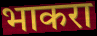
भाकरा